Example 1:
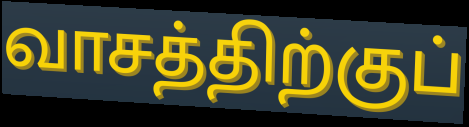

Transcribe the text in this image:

வாசத்திற்குப்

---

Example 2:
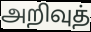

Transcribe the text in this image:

அறிவுத்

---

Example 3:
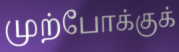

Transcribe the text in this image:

முற்போக்குக்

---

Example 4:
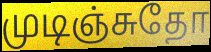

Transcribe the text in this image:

முடிஞ்சுதோ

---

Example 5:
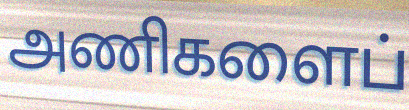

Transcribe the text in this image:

அணிகளைப்